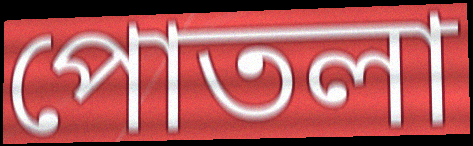
পোতলা